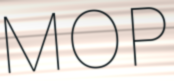
MOP